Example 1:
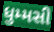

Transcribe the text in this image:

ધુમ્મસી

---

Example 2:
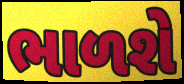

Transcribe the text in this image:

ભાળશે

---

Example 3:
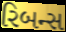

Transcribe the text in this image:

રિબન્સ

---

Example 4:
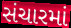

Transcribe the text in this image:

સંચારમાં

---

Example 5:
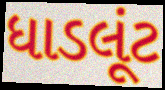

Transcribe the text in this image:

ધાડલૂંટ